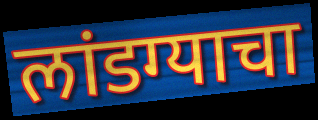
लांडग्याचा